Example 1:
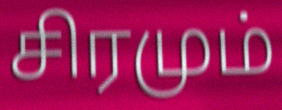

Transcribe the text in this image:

சிரமும்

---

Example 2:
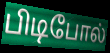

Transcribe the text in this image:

பிடிபோல்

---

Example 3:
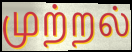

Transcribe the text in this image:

முற்றல்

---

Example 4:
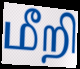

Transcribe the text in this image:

மீறி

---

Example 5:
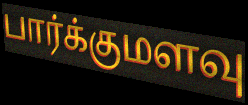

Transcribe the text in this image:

பார்க்குமளவு